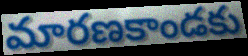
మారణకాండకు